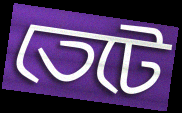
তেটে